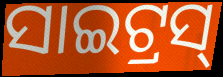
ସାଇଟ୍ରସ୍